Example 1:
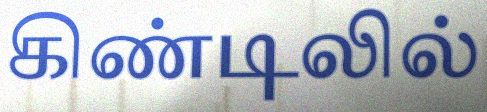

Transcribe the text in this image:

கிண்டிலில்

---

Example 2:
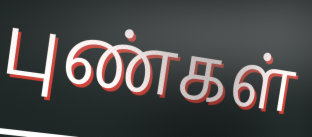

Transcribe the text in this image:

புண்கள்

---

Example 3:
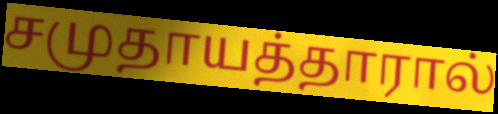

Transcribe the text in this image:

சமுதாயத்தாரால்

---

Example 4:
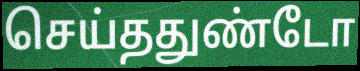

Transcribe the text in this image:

செய்ததுண்டோ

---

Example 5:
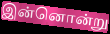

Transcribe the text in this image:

இன்னொன்று